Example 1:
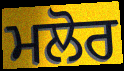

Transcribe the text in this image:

ਮਲੋਰ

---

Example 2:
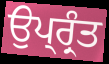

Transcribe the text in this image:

ਉਪ੍ਰ੍ਰੰਤ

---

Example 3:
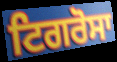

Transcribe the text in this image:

ਟਿਗਰੋਸਾ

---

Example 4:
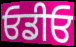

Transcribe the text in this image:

ਓਡੀਓ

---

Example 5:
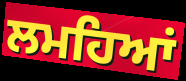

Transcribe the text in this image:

ਲਮਹਿਆਂ